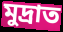
মুদ্ৰাত